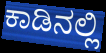
ಕಾಡಿನಲ್ಲಿ